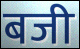
बजी